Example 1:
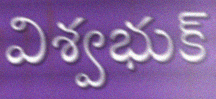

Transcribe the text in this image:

విశ్వభుక్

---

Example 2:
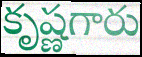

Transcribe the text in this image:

కృష్ణగారు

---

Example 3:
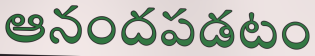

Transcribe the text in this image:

ఆనందపడటం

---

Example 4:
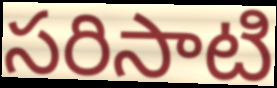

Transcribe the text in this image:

సరిసాటి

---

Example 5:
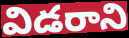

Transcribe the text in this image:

విడరాని